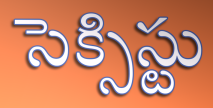
సెక్సిస్టు